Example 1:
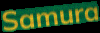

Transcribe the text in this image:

Samura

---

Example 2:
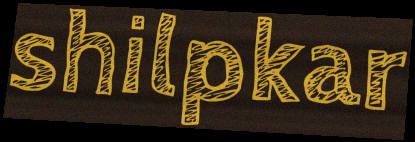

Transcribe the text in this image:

shilpkar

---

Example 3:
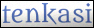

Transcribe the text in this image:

tenkasi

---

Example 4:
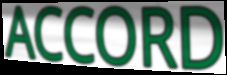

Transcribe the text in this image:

ACCORD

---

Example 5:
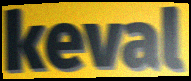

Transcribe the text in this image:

keval